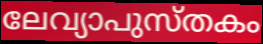
ലേവ്യാപുസ്തകം